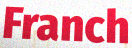
Franch